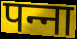
पन्‍ना